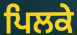
ਪਿਲਕੇ